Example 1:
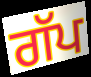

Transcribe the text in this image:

ਗੱਪ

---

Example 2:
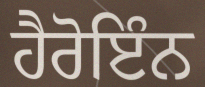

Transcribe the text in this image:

ਹੈਰੋਇੰਨ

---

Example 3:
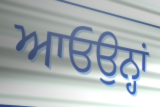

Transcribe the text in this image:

ਆਓਉਨ੍ਹਾਂ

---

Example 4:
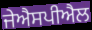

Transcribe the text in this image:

ਜੇਐਸਪੀਐਲ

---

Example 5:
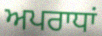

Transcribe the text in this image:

ਅਪਰਾਧਾਂ